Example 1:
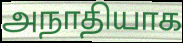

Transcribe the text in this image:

அநாதியாக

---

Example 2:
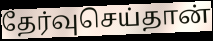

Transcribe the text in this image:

தேர்வுசெய்தான்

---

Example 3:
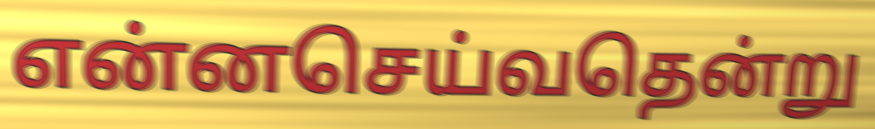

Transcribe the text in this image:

என்னசெய்வதென்று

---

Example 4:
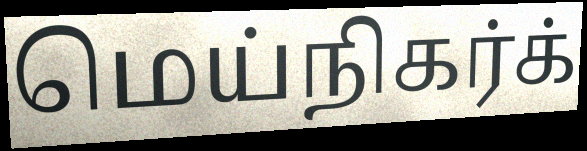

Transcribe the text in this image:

மெய்நிகர்க்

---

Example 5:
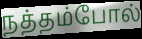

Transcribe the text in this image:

நத்தம்போல்